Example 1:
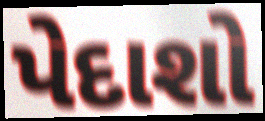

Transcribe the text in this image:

પેદાશો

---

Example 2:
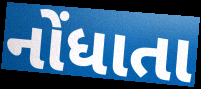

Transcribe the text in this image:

નોંધાતા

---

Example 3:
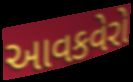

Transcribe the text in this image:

આવકવેરો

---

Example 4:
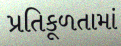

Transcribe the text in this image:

પ્રતિકૂળતામાં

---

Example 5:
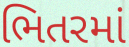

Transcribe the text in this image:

ભિતરમાં